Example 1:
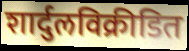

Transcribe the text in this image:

शार्दुलविक्रीडित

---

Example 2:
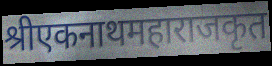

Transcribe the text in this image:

श्रीएकनाथमहाराजकृत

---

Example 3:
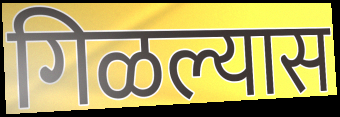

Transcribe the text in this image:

गिळल्यास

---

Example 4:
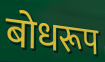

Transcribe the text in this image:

बोधरूप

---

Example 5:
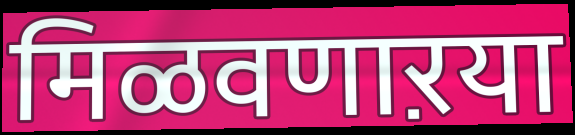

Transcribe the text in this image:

मिळवणाऱया